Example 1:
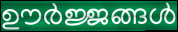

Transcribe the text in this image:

ഊർജ്ജങ്ങൾ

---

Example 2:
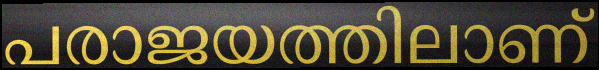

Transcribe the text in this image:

പരാജയത്തിലാണ്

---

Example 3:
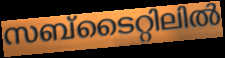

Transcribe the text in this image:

സബ്ടൈറ്റിലിൽ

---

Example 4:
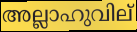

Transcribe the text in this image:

അല്ലാഹുവില്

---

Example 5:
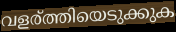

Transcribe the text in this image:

വളര്ത്തിയെടുക്കുക